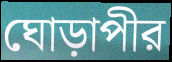
ঘোড়াপীর